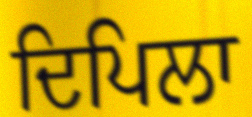
ਦਿਪਿਲਾ